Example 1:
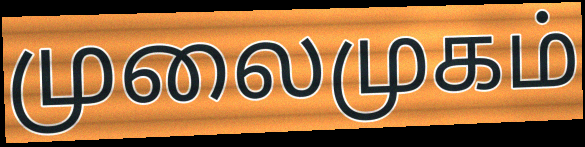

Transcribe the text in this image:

முலைமுகம்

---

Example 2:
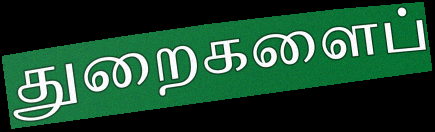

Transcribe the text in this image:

துறைகளைப்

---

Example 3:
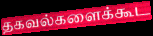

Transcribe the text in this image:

தகவல்களைக்கூட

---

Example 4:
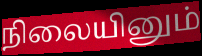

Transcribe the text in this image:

நிலையினும்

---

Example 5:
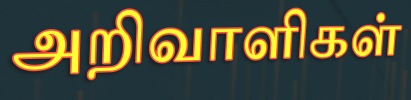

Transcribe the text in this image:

அறிவாளிகள்